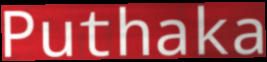
Puthaka